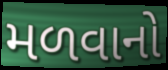
મળવાનો